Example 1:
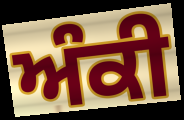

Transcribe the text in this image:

ਅੰਕੀ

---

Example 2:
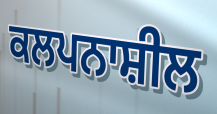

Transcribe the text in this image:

ਕਲਪਨਾਸ਼ੀਲ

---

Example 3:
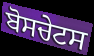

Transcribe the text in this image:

ਬੋਸਚੇਟਸ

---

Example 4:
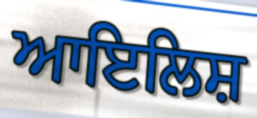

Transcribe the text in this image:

ਆਇਲਿਸ਼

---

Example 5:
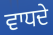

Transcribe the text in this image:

ਵਾਧਦੇ